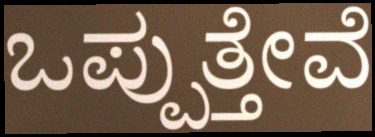
ಒಪ್ಪುತ್ತೇವೆ